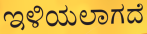
ಇಳಿಯಲಾಗದೆ